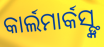
କାର୍ଲମାର୍କସ୍ଙ୍କ